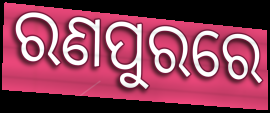
ରଣପୁରରେ